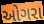
ઓગરા